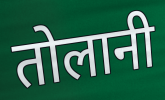
तोलानी